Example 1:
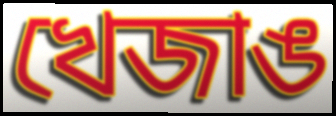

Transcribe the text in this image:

খেজাঙ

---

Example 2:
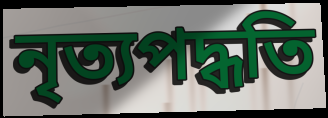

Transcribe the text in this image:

নৃত্যপদ্ধতি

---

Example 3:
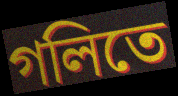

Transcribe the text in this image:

গলিতে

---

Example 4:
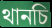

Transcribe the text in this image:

থানচি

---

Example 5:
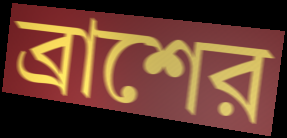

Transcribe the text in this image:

ব্রাশের